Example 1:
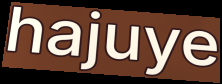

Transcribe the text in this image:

hajuye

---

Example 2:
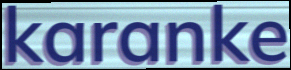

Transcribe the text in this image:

karanke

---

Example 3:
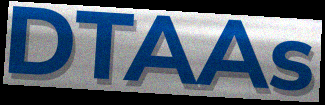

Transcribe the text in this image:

DTAAs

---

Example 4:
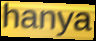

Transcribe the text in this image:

hanya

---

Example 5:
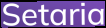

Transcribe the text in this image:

Setaria